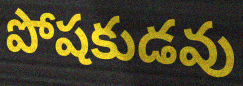
పోషకుడవు